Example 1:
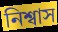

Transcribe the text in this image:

নিশ্বাস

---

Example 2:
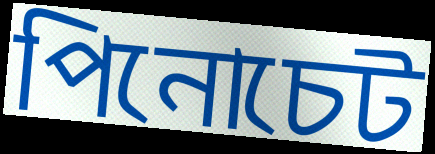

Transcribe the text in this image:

পিনোচেট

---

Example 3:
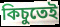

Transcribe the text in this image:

কিচুতেই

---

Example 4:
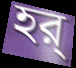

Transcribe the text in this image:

হর্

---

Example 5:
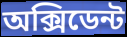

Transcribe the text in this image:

অক্সিডেন্ট